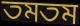
তমতম